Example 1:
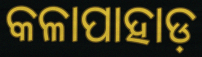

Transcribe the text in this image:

କଳାପାହାଡ଼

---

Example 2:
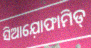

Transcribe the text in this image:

ସିଆଯ଼ୋଫାମିଡ୍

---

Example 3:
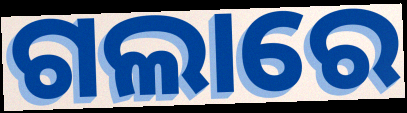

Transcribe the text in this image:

ଗଲାରେ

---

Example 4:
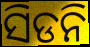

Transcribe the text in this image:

ସିଡନି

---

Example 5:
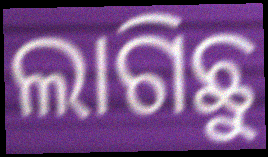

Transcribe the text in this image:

ଲାଗିଛୁ